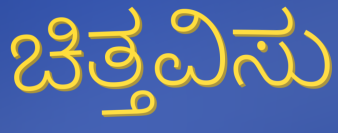
ಚಿತ್ತವಿಸು